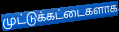
முட்டுக்கட்டைகளாக